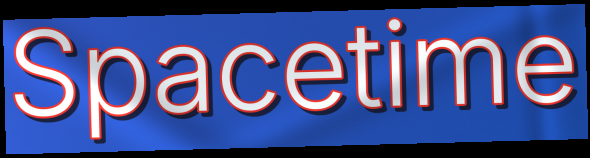
Spacetime